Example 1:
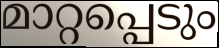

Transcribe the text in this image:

മാറ്റപ്പെടും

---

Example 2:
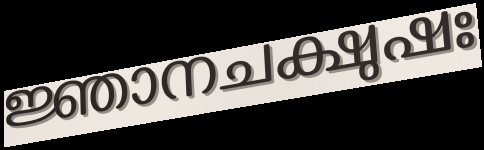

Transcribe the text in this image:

ജ്ഞാനചക്ഷുഷഃ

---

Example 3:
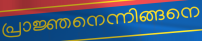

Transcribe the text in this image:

പ്രാജ്ഞനെന്നിങ്ങനെ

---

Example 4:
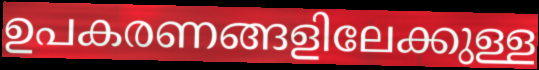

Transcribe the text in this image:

ഉപകരണങ്ങളിലേക്കുള്ള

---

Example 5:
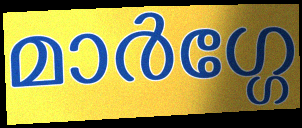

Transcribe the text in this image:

മാർഗ്ഗേ